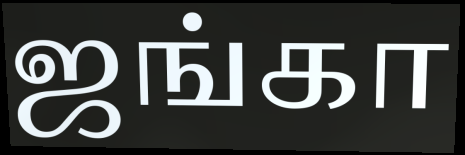
ஜங்கா